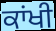
ਕਾਂਖੀ